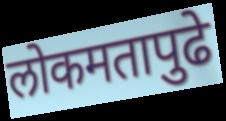
लोकमतापुढे